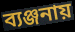
ব্যঞ্জনায়